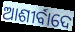
ଆଶୀର୍ବାଦେ